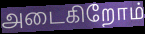
அடைகிறோம்